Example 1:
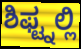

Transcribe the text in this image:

ಶಿಫ್ಟ್ನಲ್ಲಿ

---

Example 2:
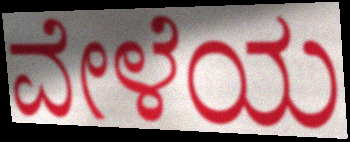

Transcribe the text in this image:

ವೇಳೆಯ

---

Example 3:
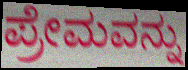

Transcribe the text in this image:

ಪ್ರೇಮವನ್ನು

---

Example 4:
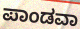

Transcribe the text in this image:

ಪಾಂಡವಾ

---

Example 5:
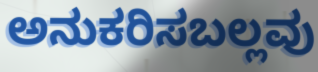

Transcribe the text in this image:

ಅನುಕರಿಸಬಲ್ಲವು